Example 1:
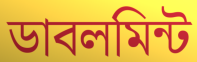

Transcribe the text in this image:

ডাবলমিন্ট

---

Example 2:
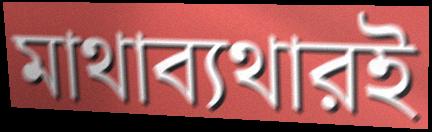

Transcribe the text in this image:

মাথাব্যথারই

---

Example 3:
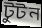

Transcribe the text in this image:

টুটন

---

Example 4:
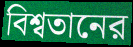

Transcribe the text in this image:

বিশ্বতানের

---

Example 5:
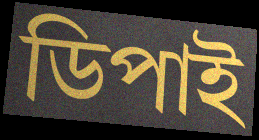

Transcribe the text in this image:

ডিপাই